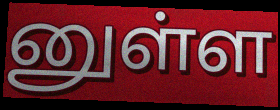
னுள்ள